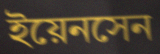
ইয়েনসেন